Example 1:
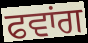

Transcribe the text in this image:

ਫਵਾਂਗ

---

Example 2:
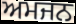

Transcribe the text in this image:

ਅਮਜਨ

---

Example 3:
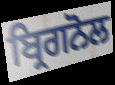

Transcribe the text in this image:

ਬ੍ਰਿਗਨੋਲ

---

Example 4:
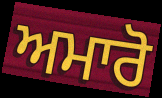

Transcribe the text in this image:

ਅਮਾਰੋ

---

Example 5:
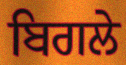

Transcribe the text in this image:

ਬਿਗਲੇ